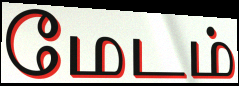
மேடம்